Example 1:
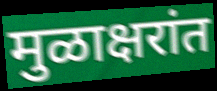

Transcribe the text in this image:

मुळाक्षरांत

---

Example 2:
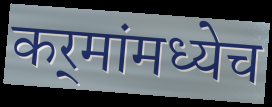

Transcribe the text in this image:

कर्मांमध्येच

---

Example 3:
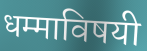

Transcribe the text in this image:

धम्माविषयी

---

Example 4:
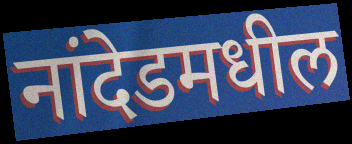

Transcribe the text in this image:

नांदेडमधील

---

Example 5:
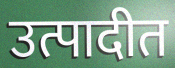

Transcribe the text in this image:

उत्पादीत